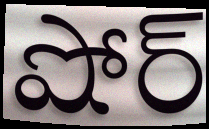
షోర్